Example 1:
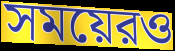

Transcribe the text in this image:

সময়েরও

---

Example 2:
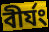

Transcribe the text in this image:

বীর্যং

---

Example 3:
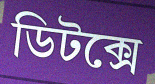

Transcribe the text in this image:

ডিটক্সে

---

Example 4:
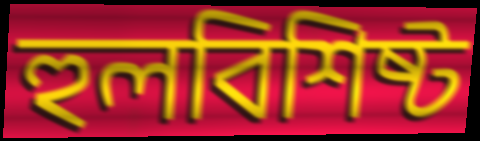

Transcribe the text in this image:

হুলবিশিষ্ট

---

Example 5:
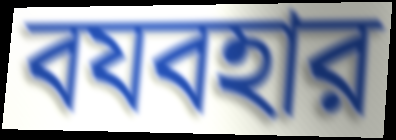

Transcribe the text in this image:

বযবহার